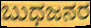
ಬುಧಜನರ